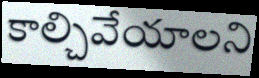
కాల్చివేయాలని